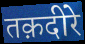
तक़दीरे